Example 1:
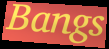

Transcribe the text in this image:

Bangs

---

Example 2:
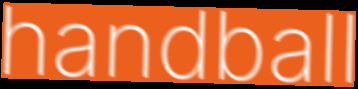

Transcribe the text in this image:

handball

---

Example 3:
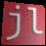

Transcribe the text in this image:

jl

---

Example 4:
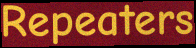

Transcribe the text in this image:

Repeaters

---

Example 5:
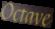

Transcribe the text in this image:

Octave